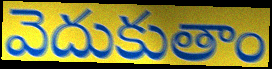
వెదుకుతాం